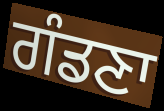
ਗੰਡਣਾ